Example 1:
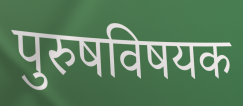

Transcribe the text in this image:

पुरुषविषयक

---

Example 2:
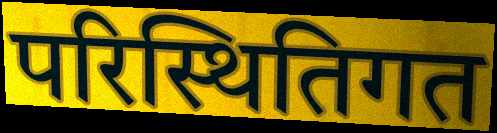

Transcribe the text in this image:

परिस्थितिगत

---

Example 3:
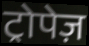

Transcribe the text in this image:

ट्रोपेज़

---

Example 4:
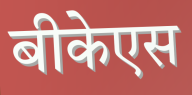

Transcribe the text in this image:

बीकेएस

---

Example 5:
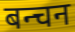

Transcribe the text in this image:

बन्चन